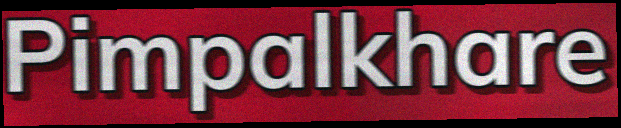
Pimpalkhare